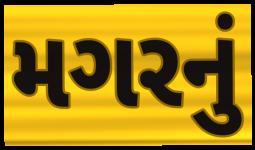
મગરનું